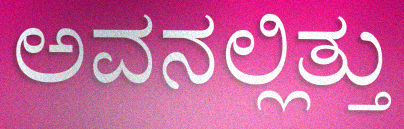
ಅವನಲ್ಲಿತ್ತು